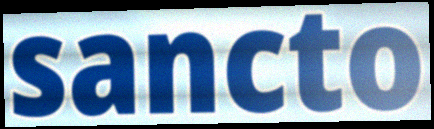
sancto